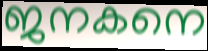
ജനകനെ